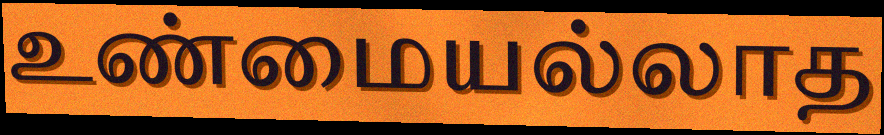
உண்மையல்லாத